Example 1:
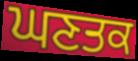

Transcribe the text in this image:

ਘਣਤਕ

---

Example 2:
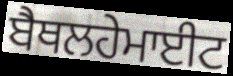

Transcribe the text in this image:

ਬੈਥਲਹੇਮਾਈਟ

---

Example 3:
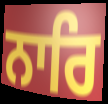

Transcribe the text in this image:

ਨਾਰਿ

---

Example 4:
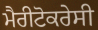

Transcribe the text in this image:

ਮੈਰੀਟੋਕਰੇਸੀ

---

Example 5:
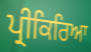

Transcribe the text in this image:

ਪ੍ਰੀਕਿਰਿਆ